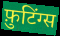
फ़ुटिंग्स